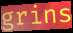
grins